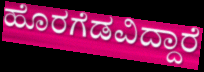
ಹೊರಗೆಡವಿದ್ದಾರೆ